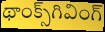
థాంక్స్‌గివింగ్